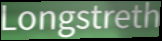
Longstreth